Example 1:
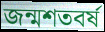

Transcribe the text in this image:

জন্মশতবর্ষ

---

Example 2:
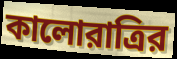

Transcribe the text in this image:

কালোরাত্রির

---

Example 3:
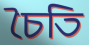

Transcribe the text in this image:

চৈতি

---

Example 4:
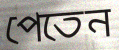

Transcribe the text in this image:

পেতেন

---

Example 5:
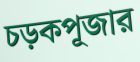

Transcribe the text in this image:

চড়কপূজার